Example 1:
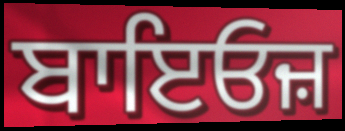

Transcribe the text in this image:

ਬਾਇਓਜ਼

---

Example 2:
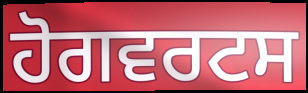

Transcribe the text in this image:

ਹੋਗਵਰਟਸ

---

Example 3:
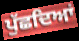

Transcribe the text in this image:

ਪੁੱਛਦਿਆਂ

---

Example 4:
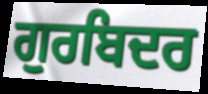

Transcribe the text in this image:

ਗੁਰਬਿਦਰ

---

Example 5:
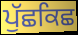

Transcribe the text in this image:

ਪੁੱਛਕਿਛ